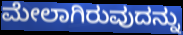
ಮೇಲಾಗಿರುವುದನ್ನು